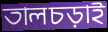
তালচড়াই